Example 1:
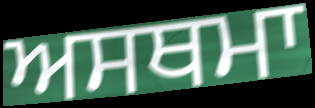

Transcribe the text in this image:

ਅਸਥਮਾ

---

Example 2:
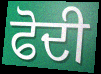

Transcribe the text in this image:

ਫੋਦੀ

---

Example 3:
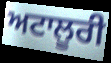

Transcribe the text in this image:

ਅਟਾਲੂਰੀ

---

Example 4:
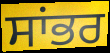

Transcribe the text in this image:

ਸਾਂਭਰ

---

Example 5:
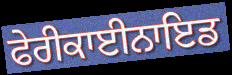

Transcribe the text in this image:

ਫੇਰੀਕਾਈਨਾਇਡ